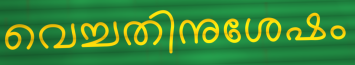
വെച്ചതിനുശേഷം